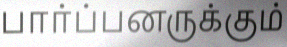
பார்ப்பனருக்கும்